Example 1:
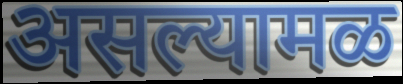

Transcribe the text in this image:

असल्यामळ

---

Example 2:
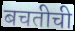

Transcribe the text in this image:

बचतीची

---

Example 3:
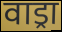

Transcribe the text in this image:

वाड्रा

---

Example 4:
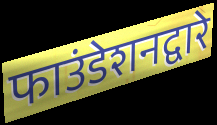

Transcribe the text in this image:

फाउंडेशनद्वारे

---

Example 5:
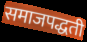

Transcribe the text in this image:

समाजपद्धती